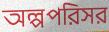
অল্পপরিসর